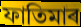
ফাতিমাৰ